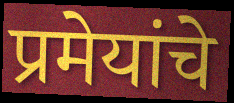
प्रमेयांचे